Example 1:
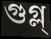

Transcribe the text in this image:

গুগ্ল্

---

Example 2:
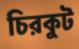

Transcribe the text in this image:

চিরকুট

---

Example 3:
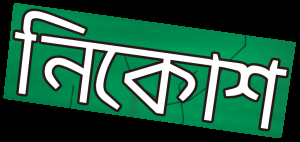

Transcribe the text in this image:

নিকোশ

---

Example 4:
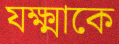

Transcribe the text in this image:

যক্ষ্মাকে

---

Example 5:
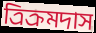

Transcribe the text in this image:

ত্রিক্রমদাস